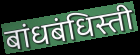
बांधबंधिस्ती